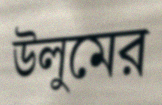
উলুমের